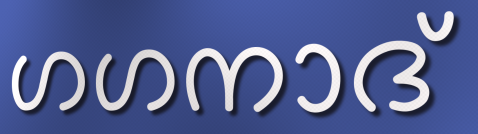
ഗഗനാദ്